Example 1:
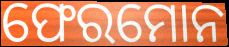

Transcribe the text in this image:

ଫେରମୋନ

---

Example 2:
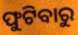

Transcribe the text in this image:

ଫୁଟିବାରୁ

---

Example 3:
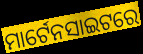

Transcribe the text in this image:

ମାର୍ଟେନସାଇଟରେ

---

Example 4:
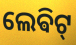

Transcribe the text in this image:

ଲେଵିଟ୍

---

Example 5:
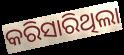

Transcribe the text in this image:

କରିସାରିଥିଲା